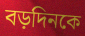
বড়দিনকে